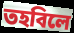
তহবিলে